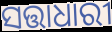
ସତ୍ତାଧାରୀ